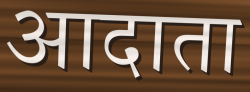
आदाता